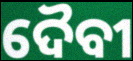
ଦୈବୀ